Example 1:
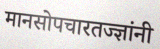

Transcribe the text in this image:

मानसोपचारतज्ज्ञांनी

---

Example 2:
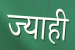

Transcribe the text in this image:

ज्याही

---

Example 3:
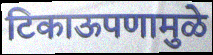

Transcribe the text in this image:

टिकाऊपणामुळे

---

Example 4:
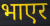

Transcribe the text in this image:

भाएर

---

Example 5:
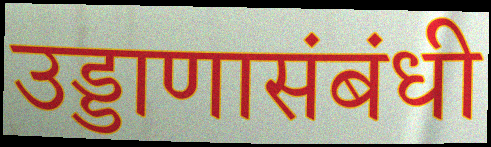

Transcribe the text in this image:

उड्डाणासंबंधी